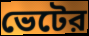
ভেটের